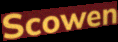
Scowen